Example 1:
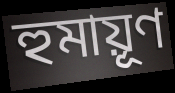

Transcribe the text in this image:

হুমায়ূণ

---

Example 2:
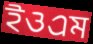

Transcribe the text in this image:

ইওএম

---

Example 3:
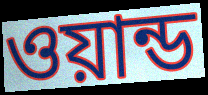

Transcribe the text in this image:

ওয়ান্ড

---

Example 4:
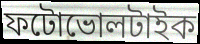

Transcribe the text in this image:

ফটোভোলটাইক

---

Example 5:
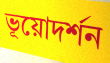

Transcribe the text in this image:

ভূয়োদর্শন